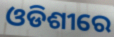
ଓଡିଶୀରେ